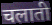
चलाती